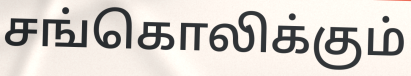
சங்கொலிக்கும்